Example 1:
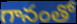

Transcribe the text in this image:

గానంతో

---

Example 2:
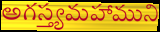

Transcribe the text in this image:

అగస్త్యమహాముని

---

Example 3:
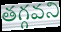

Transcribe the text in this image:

తగ్గవని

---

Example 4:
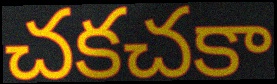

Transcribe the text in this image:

చకచకా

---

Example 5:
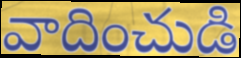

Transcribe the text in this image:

వాదించుడి